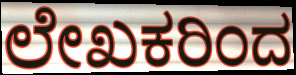
ಲೇಖಕರಿಂದ